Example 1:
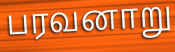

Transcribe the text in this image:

பரவனாறு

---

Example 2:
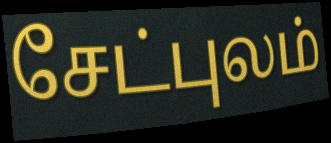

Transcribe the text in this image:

சேட்புலம்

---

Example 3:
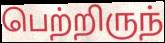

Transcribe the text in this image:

பெற்றிருந்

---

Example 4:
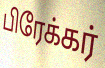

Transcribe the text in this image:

பிரேக்கர்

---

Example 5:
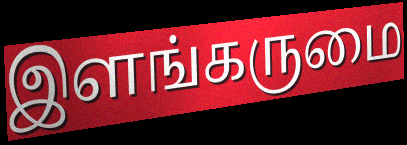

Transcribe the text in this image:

இளங்கருமை